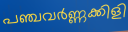
പഞ്ചവർണ്ണക്കിളി